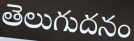
తెలుగుదనం